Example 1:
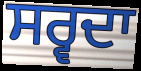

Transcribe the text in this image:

ਸਰ੍ਵਦਾ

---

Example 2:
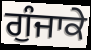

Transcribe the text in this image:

ਗੁੰਜਾਕੇ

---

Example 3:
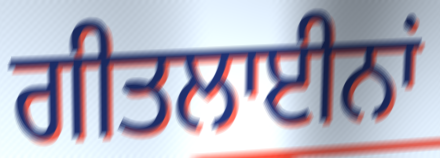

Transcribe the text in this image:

ਗੀਤਲਾਈਨਾਂ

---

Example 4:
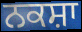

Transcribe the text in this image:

ਨਕਸ਼ਾ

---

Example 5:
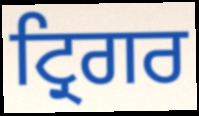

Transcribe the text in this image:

ਟ੍ਰਿਗਰ